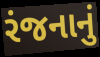
રંજનાનું